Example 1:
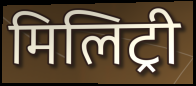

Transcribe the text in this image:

मिलिट्री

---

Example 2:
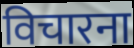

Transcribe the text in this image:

विचारना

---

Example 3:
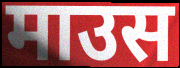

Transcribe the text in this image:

माउस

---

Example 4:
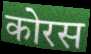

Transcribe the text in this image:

कोरस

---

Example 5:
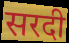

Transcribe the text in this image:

सरदी